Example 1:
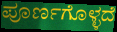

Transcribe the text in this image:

ಪೂರ್ಣಗೊಳ್ಳದೆ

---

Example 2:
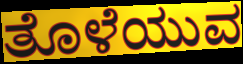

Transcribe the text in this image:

ತೊಳೆಯುವ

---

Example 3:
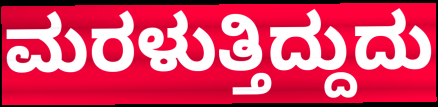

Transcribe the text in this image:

ಮರಳುತ್ತಿದ್ದುದು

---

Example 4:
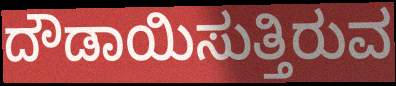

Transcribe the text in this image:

ದೌಡಾಯಿಸುತ್ತಿರುವ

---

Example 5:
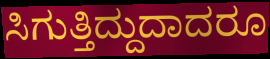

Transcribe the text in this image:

ಸಿಗುತ್ತಿದ್ದುದಾದರೂ